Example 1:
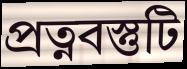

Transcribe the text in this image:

প্রত্নবস্তুটি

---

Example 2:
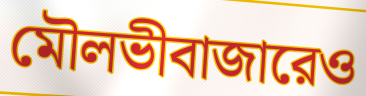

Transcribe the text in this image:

মৌলভীবাজারেও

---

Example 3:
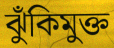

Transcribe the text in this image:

ঝুঁকিমুক্ত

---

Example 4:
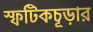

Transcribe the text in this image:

স্ফটিকচূড়ার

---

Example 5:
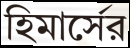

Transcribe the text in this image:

হিমার্সের